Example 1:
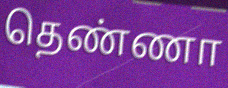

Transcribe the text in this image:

தெண்ணா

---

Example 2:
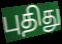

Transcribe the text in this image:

புதிது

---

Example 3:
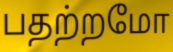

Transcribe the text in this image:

பதற்றமோ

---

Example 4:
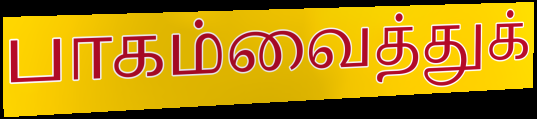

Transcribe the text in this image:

பாகம்வைத்துக்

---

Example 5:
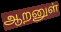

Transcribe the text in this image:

ஆறனுள்